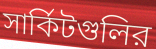
সার্কিটগুলির